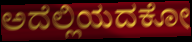
ಅದೆಲ್ಲಿಯದಕೋ